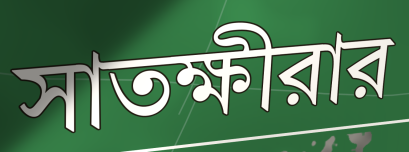
সাতক্ষীরার